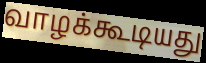
வாழக்கூடியது